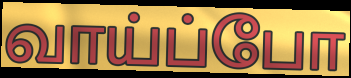
வாய்ப்போ